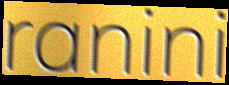
ranini